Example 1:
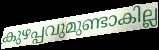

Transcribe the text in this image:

കുഴപ്പവുമുണ്ടാകില്ല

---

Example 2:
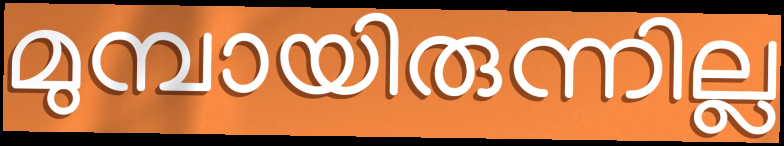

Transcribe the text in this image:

മുമ്പായിരുന്നില്ല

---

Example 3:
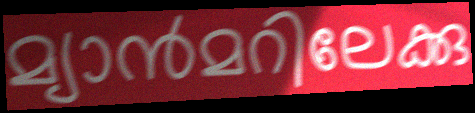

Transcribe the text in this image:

മ്യാൻമറിലേക്കു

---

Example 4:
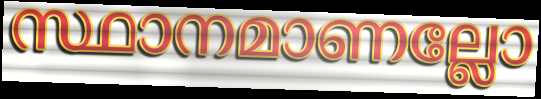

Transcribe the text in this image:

സ്ഥാനമാണല്ലോ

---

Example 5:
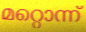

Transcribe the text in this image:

മറ്റൊന്ന്